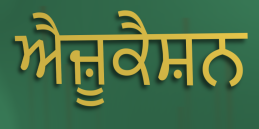
ਐਜ਼ੂਕੈਸ਼ਨ